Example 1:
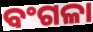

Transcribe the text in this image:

ବଂଗଳା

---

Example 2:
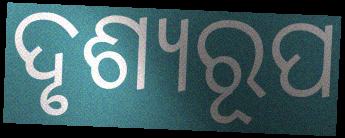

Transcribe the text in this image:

ଦୃଶ୍ୟରୂପ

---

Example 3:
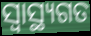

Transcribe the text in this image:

ସ୍ବାସ୍ଥ୍ୟଗତ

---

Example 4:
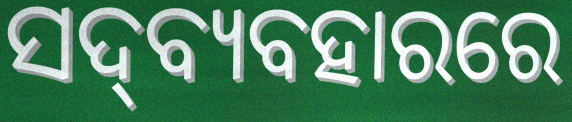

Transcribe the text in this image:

ସଦ୍‍ବ୍ୟବହାରରେ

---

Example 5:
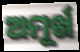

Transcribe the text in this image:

ଅମୂର୍ଖ